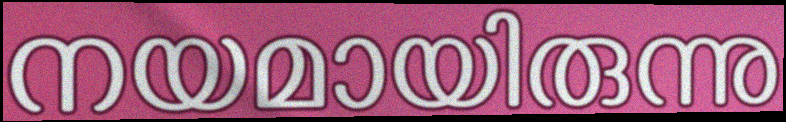
നയമായിരുന്നു